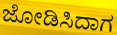
ಜೋಡಿಸಿದಾಗ